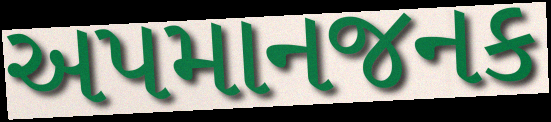
અપમાનજનક